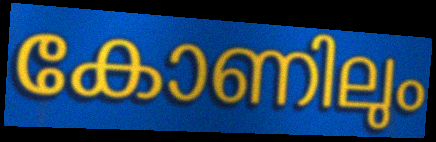
കോണിലും